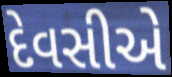
દેવસીએ